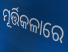
ମୂର୍ତ୍ତିକଳାରେ